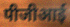
पीजीआई